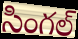
సింగల్